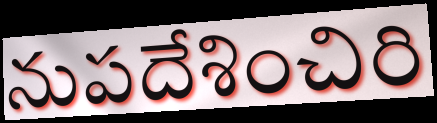
నుపదేశించిరి